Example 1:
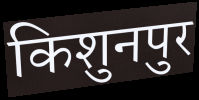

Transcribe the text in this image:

किशुनपुर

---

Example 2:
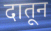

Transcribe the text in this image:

दातून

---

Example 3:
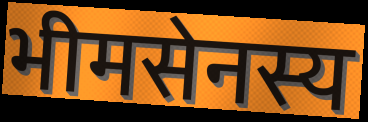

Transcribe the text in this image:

भीमसेनस्य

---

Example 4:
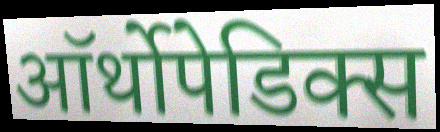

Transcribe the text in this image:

ऑर्थोपेडिक्स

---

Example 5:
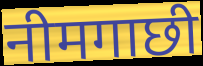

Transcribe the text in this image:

नीमगाछी